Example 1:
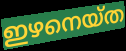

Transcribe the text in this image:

ഇഴനെയ്ത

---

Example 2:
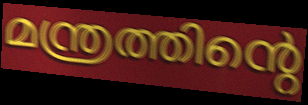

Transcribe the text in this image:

മന്ത്രത്തിന്റെ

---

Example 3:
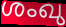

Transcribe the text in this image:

ശംഖു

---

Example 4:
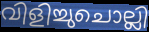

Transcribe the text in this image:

വിളിച്ചുചൊല്ലി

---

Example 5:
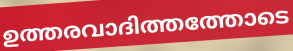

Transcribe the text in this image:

ഉത്തരവാദിത്തത്തോടെ